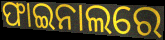
ଫାଇନାଲରେ